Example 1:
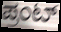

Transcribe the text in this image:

ಪ್ರಂಟ್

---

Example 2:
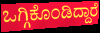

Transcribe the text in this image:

ಒಗ್ಗಿಕೊಂಡಿದ್ದಾರೆ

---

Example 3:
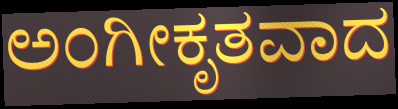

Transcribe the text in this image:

ಅಂಗೀಕೃತವಾದ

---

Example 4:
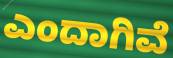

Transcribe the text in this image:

ಎಂದಾಗಿವೆ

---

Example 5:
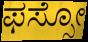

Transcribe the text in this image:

ಫಸ್ಸೋ